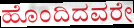
ಹೊಂದಿದವರೇ